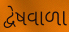
દ્વેષવાળા